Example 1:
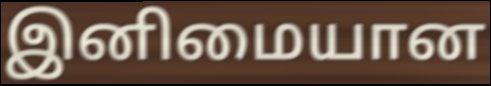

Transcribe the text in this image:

இனிமையான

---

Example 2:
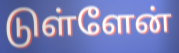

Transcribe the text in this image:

டுள்ளேன்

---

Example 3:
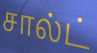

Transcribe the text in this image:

சால்ட்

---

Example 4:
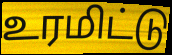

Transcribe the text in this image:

உரமிட்டு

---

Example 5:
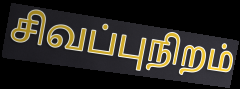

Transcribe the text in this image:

சிவப்புநிறம்